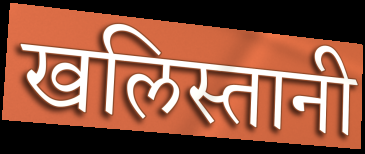
खलिस्तानी